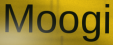
Moogi